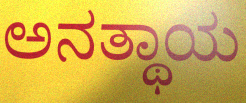
ಅನತ್ಥಾಯ